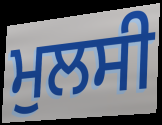
ਮੁਲਸੀ